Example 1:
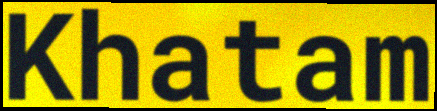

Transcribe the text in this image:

Khatam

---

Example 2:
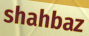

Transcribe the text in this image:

shahbaz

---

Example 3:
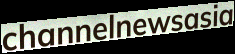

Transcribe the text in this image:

channelnewsasia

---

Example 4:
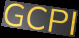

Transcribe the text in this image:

GCPI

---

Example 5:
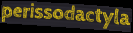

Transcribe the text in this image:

perissodactyla